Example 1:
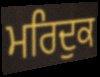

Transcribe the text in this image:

ਮਰਿਦੁਕ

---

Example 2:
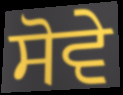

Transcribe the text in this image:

ਸੋਵੇ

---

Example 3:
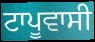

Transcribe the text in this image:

ਟਾਪੂਵਾਸੀ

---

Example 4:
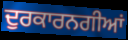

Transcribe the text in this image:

ਦੁਰਕਾਰਨਗੀਆਂ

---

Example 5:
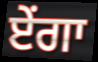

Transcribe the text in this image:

ਏਂਗਾ